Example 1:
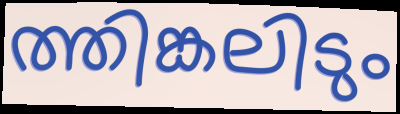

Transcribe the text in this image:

ത്തിങ്കലിടും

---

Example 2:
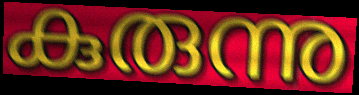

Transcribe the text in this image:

കുരുന്നു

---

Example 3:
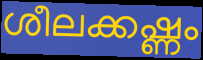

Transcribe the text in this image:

ശീലക്കഷ്ണം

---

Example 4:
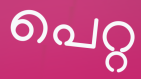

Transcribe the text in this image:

പെറ്റ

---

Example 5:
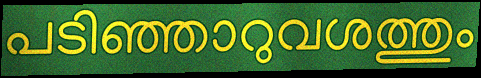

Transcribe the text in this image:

പടിഞ്ഞാറുവശത്തും